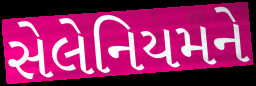
સેલેનિયમને